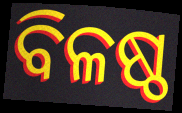
ବିଳଷ୍ଠ